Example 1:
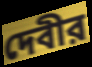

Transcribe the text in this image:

দেবীর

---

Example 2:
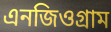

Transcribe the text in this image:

এনজিওগ্রাম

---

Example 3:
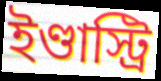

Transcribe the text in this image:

ইণ্ডাস্ট্রি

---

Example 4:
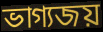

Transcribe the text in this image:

ভাগ্যজয়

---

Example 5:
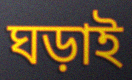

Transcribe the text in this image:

ঘড়াই